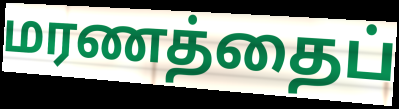
மரணத்தைப்